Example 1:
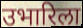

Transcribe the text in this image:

उभारिला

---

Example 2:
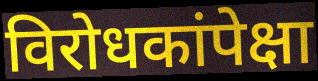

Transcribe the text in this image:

विरोधकांपेक्षा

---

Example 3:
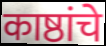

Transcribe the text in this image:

काष्ठांचे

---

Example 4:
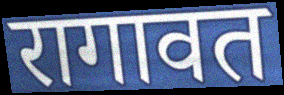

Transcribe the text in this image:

रागावत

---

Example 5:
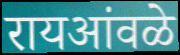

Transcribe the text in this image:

रायआंवळे